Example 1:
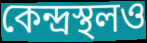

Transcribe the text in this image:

কেন্দ্রস্থলও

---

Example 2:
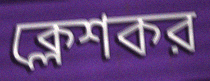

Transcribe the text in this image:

ক্লেশকর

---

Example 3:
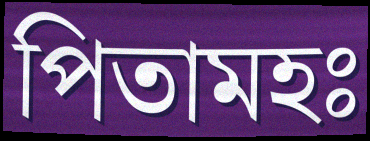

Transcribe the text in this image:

পিতামহঃ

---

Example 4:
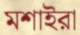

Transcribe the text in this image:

মশাইরা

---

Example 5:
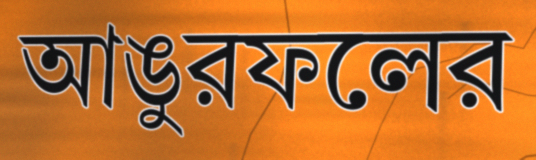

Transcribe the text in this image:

আঙুরফলের